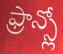
ఫ్రాన్స్లో